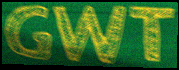
GWT